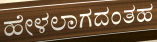
ಹೇಳಲಾಗದಂತಹ